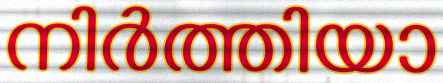
നിർത്തിയാ